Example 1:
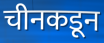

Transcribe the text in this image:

चीनकडून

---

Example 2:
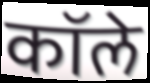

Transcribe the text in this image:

कॉले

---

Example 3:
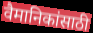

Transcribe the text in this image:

वैमानिकांसाठी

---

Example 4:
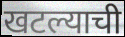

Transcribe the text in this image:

खटल्याची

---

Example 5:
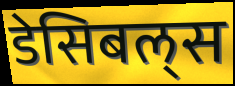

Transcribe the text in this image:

डेसिबल्स